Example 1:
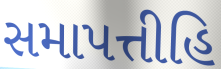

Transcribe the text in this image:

સમાપત્તીહિ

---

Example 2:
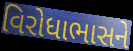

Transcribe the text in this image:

વિરોધાભાસને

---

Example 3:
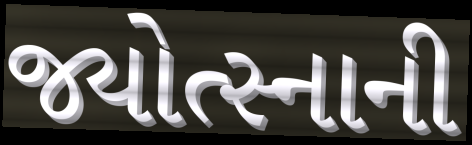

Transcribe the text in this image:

જ્યોત્સ્નાની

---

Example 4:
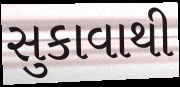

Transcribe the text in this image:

સુકાવાથી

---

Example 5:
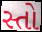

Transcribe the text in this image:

સ્તો